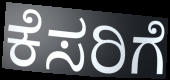
ಕೆಸರಿಗೆ